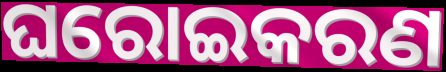
ଘରୋଇକରଣ